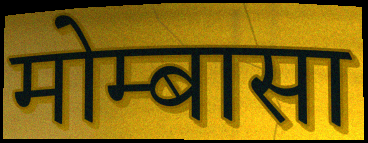
मोम्बासा